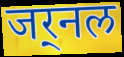
जर्नल